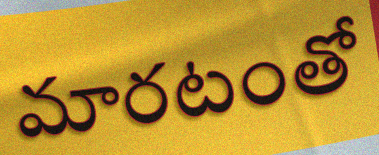
మారటంతో